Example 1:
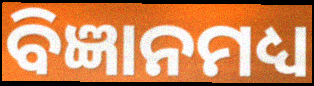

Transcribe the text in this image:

ବିଜ୍ଞାନମଧ୍ୟ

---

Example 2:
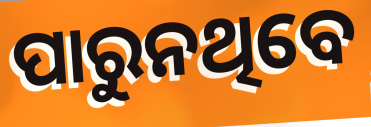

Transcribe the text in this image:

ପାରୁନଥିବେ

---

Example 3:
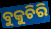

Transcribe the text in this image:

ବୁକୁଚିରି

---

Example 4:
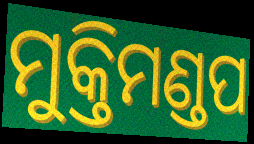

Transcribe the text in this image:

ମୁକ୍ତିମଣ୍ଡପ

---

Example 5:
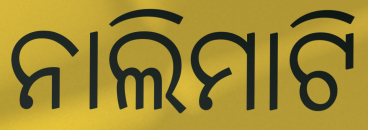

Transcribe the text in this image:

ନାଲିମାଟି